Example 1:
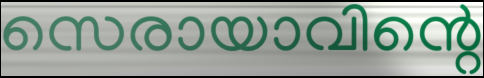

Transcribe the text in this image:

സെരായാവിന്റെ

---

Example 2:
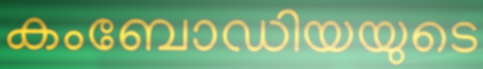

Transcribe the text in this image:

കംബോഡിയയുടെ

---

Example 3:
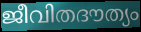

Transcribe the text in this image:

ജീവിതദൗത്യം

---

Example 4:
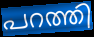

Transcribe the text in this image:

പറത്തി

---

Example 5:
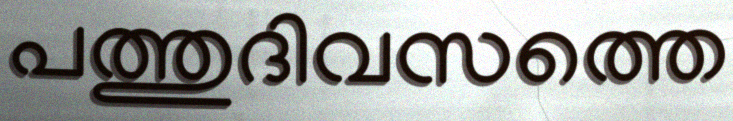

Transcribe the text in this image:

പത്തുദിവസത്തെ